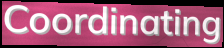
Coordinating